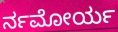
ರ್ನಮೋರ್ಯ